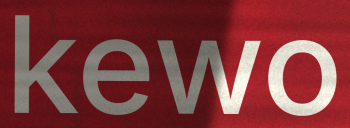
kewo